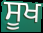
ਸੂਖ